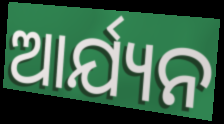
ଆର୍ଯ୍ୟନ